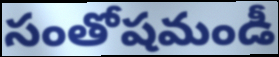
సంతోషమండీ